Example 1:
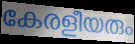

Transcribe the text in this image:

കേരളീയരും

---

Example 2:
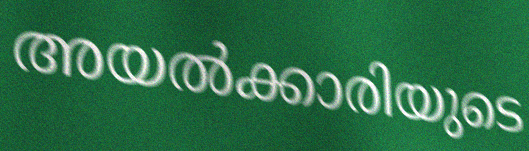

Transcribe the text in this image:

അയൽക്കാരിയുടെ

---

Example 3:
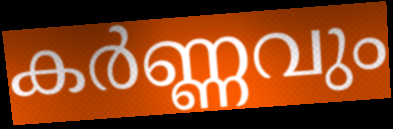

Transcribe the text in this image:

കർണ്ണവും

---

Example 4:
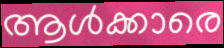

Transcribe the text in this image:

ആൾക്കാരെ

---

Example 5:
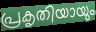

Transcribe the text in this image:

പ്രകൃതിയായും